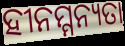
ହୀନମ୍ମନ୍ୟତା